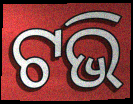
ଟଭି